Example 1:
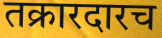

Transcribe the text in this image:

तक्रारदारच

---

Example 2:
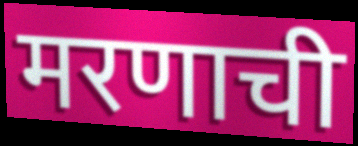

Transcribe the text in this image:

मरणाची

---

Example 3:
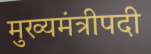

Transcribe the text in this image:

मुख्यमंत्रीपदी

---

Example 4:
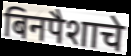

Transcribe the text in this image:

बिनपैशाचे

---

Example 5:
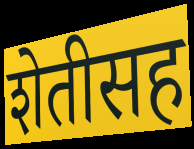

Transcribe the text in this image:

शेतीसह